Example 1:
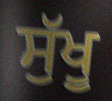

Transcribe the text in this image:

ਸੁੱਖੂ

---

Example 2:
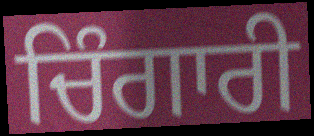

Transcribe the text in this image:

ਚਿੰਗਾਰੀ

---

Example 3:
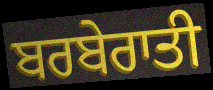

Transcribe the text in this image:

ਬਰਬੇਰਾਤੀ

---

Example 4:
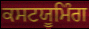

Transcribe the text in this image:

ਕਸਟਯੂਮਿੰਗ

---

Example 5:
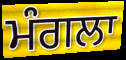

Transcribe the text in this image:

ਮੰਗਲਾ